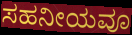
ಸಹನೀಯವೂ